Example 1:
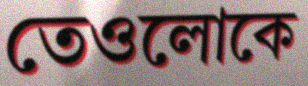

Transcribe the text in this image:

তেওলোকে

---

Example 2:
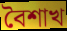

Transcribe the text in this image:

বৈশাখ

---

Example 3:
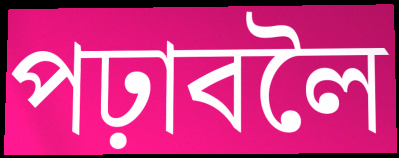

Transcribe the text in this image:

পঢ়াবলৈ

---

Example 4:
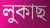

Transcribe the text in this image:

লুকাছ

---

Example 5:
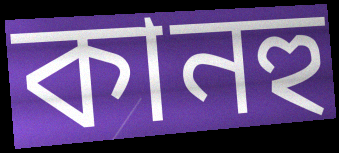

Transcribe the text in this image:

কানহু